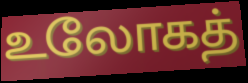
உலோகத்